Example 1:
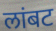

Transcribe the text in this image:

लांबट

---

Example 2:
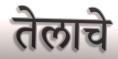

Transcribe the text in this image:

तेलाचे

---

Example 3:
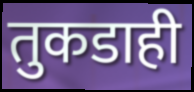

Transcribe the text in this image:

तुकडाही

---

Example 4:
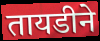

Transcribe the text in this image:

तायडीने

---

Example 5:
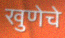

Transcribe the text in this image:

खुणेचे